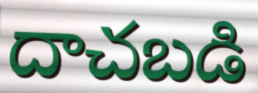
దాచబడి